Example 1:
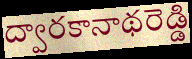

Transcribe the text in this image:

ద్వారకానాథరెడ్డి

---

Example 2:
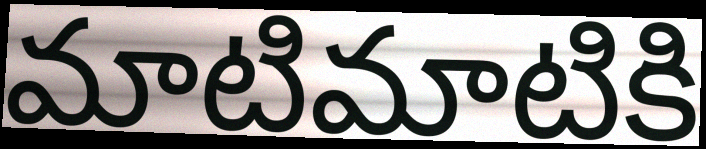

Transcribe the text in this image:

మాటిమాటికి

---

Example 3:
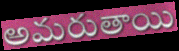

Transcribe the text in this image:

అమరుతాయి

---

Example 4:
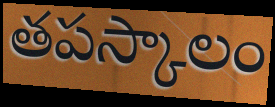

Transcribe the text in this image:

తపస్కాలం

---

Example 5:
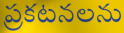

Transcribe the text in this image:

ప్రకటనలను